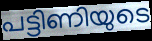
പട്ടിണിയുടെ